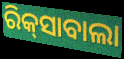
ରିକ୍‌ସାବାଲା